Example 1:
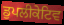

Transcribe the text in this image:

ਡੁਪਲੀਕੇਟਿਵ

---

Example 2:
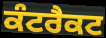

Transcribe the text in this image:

ਕੰਟਰੈਕਟ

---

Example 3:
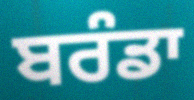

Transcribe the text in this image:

ਬਰੰਡਾ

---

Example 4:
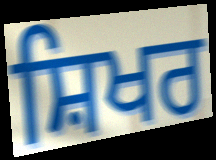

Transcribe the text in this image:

ਸ਼ਿਖਰ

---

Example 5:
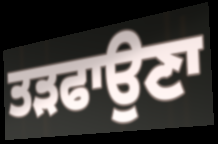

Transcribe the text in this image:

ਤੜਫਾਉਣਾ